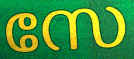
സേ